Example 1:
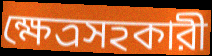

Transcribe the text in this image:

ক্ষেত্রসহকারী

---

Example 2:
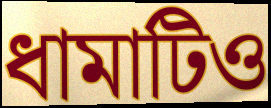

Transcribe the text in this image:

ধামাটিও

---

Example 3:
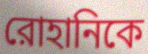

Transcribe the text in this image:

রোহানিকে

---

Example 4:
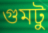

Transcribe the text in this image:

গুমটু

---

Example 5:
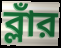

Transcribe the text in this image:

ব্লাঁর